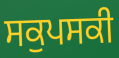
ਸਕੁਪਸਕੀ